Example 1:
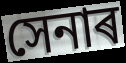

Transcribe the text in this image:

সেনাৰ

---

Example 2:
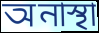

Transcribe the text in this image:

অনাস্থা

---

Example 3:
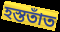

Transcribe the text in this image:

হস্ততাঁত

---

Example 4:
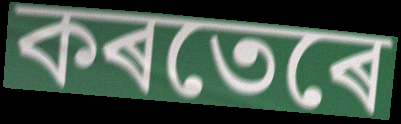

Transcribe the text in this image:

কৰতেৰে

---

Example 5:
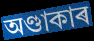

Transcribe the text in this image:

অণ্ডাকাৰ